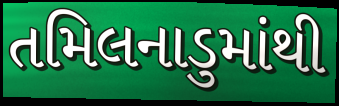
તમિલનાડુમાંથી